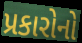
પ્રકારોનો